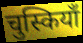
चुस्कियाँ